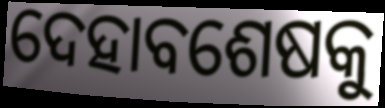
ଦେହାବଶେଷକୁ